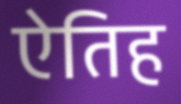
ऐतिह